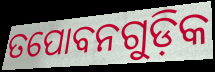
ତପୋବନଗୁଡ଼ିକ